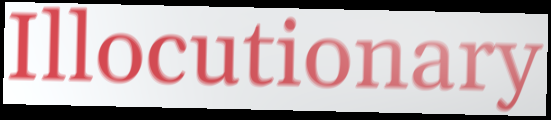
Illocutionary